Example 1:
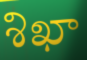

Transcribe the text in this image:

శిఖా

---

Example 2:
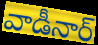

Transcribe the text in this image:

వాడీనార్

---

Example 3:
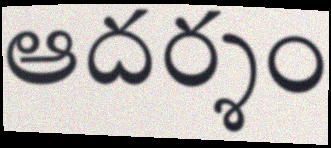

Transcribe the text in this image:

ఆదర్శం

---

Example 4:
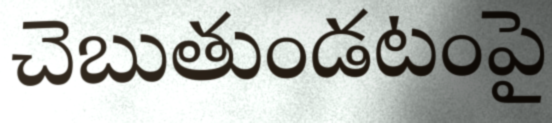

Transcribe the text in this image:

చెబుతుండటంపై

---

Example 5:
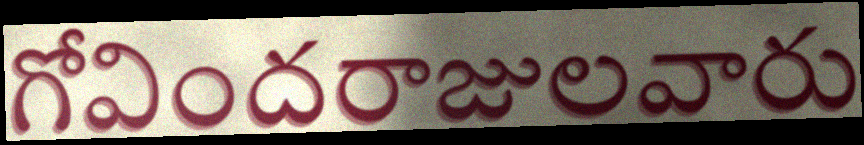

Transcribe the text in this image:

గోవిందరాజులవారు